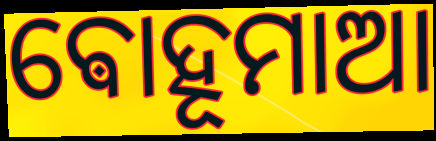
ଵୋହୂମାଆ